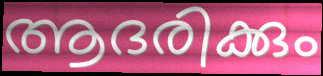
ആദരിക്കും